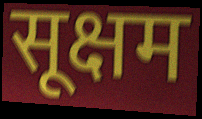
सूक्षम